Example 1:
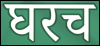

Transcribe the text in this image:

घरच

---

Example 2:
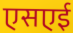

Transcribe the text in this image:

एसएई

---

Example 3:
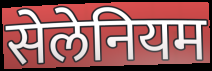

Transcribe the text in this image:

सेलेनियम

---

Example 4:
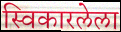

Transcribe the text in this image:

स्विकारलेला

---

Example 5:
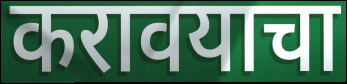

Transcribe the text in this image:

करावयाचा